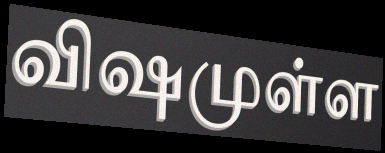
விஷமுள்ள